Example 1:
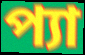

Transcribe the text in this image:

প্যা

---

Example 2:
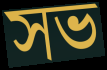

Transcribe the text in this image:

সভ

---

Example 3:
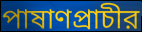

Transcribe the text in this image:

পাষাণপ্রাচীর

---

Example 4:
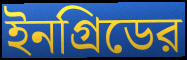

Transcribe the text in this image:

ইনগ্রিডের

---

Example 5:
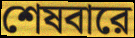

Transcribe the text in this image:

শেষবারে